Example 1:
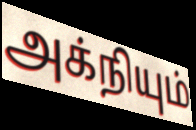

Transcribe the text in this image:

அக்நியும்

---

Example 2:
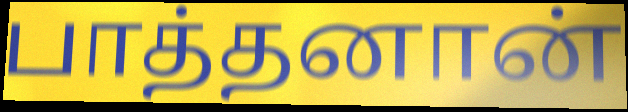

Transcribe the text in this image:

பாத்தனான்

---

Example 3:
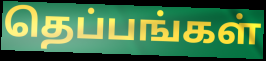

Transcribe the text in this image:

தெப்பங்கள்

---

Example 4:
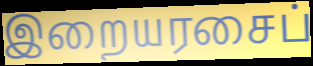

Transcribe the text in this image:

இறையரசைப்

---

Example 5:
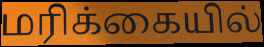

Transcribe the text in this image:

மரிக்கையில்